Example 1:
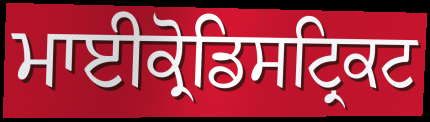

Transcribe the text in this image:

ਮਾਈਕ੍ਰੋਡਿਸਟ੍ਰਿਕਟ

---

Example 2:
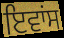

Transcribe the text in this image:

ਇਵਾਂਸ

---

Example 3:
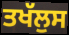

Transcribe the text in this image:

ਤਖੱਲੁਸ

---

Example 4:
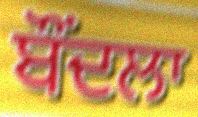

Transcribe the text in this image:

ਬੌਂਦਲਾ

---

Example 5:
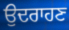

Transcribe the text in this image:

ਉਦਰਾਹਣ